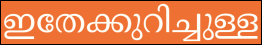
ഇതേക്കുറിച്ചുള്ള